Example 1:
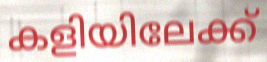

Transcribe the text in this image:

കളിയിലേക്ക്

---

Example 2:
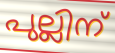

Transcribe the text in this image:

പുല്ലിന്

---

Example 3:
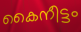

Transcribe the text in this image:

കൈനീട്ടം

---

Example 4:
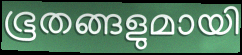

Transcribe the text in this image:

ഭൂതങ്ങളുമായി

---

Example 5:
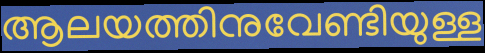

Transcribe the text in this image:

ആലയത്തിനുവേണ്ടിയുള്ള